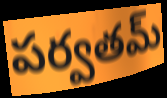
పర్వతమ్